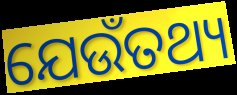
ଯେଉଁତଥ୍ୟ